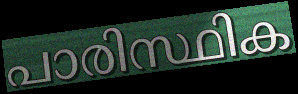
പാരിസ്ഥിക